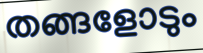
തങ്ങളോടും